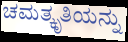
ಚಮತ್ಕೃತಿಯನ್ನು